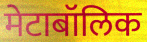
मेटाबॉलिक